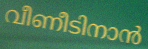
വീണീടിനാൻ